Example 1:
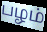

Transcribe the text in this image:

பழம்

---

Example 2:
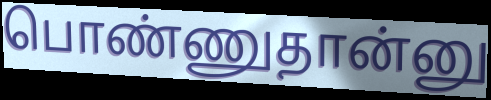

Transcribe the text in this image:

பொண்ணுதான்னு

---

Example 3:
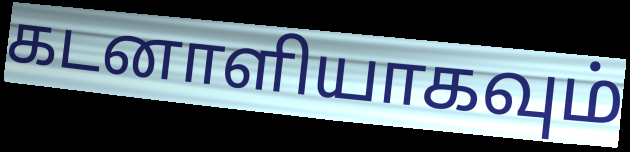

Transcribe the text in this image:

கடனாளியாகவும்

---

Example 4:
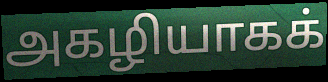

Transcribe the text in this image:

அகழியாகக்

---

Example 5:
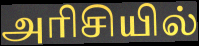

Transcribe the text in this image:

அரிசியில்